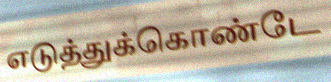
எடுத்துக்கொண்டே